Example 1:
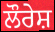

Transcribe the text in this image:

ਲੌਰੇਸ਼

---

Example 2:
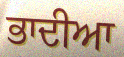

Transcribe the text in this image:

ਭਾਦੀਆ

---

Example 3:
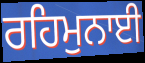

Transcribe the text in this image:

ਰਹਿਮੁਨਾਈ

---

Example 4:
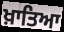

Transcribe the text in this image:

ਖ਼ਾਤਿਆ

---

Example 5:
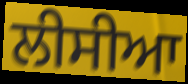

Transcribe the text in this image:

ਲੀਸੀਆ